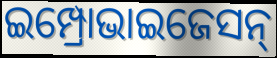
ଇମ୍ପ୍ରୋଭାଇଜେସନ୍